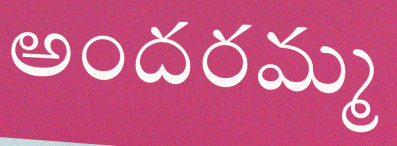
అందరమ్మ